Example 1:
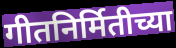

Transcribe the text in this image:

गीतनिर्मितीच्या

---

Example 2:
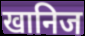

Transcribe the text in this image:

खानिज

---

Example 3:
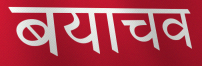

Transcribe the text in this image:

बयाचव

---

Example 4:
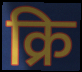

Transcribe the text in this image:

क्रि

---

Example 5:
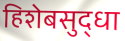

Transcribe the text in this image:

हिशेबसुद्धा